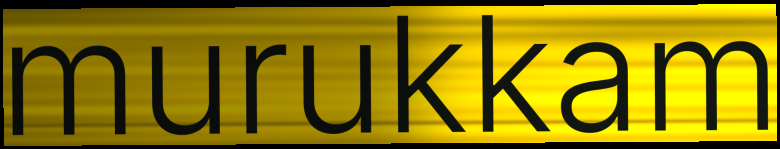
murukkam